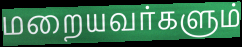
மறையவர்களும்